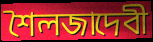
শৈলজাদেবী